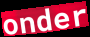
onder